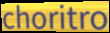
choritro